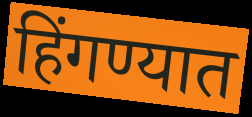
हिंगण्यात